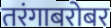
तरंगाबरोबर